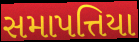
સમાપત્તિયા